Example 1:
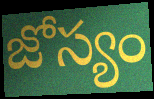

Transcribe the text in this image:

జోస్యం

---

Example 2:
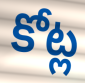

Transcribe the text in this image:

కోట్ల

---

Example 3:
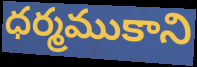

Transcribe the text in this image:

ధర్మముకాని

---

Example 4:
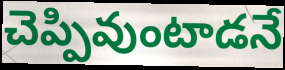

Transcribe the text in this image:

చెప్పివుంటాడనే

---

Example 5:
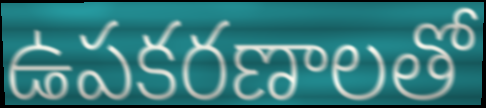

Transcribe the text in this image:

ఉపకరణాలతో